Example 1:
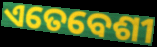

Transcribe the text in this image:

ଏତେବେଶୀ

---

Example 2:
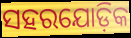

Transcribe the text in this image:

ସହରଯୋଡ଼ିକ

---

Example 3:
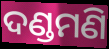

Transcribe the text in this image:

ଦଣ୍ଡମଣି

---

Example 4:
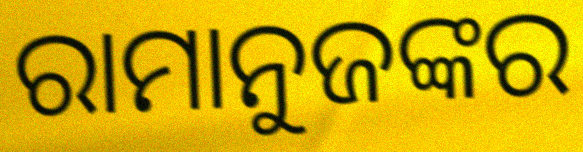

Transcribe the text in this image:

ରାମାନୁଜଙ୍କର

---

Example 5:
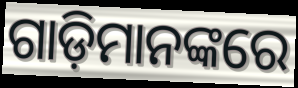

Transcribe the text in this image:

ଗାଡ଼ିମାନଙ୍କରେ